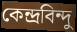
কেন্দ্ৰবিন্দু